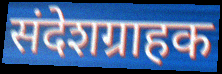
संदेशग्राहक